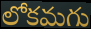
లోకమగు